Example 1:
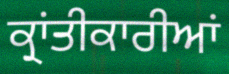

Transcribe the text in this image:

ਕ੍ਰਾਂਤੀਕਾਰੀਆਂ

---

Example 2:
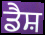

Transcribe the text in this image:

ਡੈਸ਼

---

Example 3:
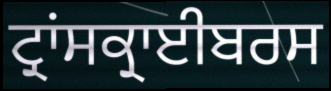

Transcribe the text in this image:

ਟ੍ਰਾਂਸਕ੍ਰਾਈਬਰਸ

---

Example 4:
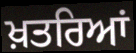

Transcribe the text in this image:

ਖ਼ਤਰਿਆਂ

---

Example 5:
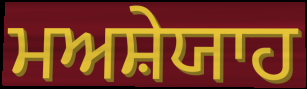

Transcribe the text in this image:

ਮਅਸ਼ੇਯਾਹ